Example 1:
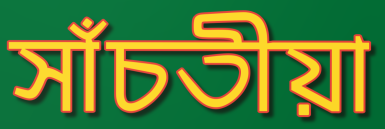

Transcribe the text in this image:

সাঁচতীয়া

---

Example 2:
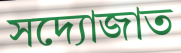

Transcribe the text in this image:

সদ্যোজাত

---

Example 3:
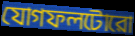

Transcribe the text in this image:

যোগফলটোৱো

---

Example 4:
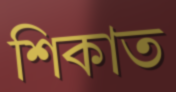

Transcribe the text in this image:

শিকাত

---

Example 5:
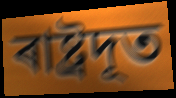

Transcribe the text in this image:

ৰাষ্ট্ৰদূত